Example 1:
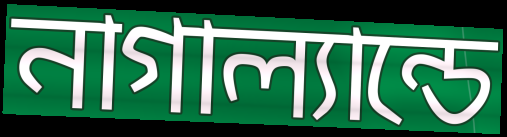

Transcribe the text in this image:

নাগাল্যান্ডে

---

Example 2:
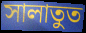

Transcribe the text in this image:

সালাতুত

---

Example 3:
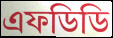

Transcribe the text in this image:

এফডিডি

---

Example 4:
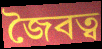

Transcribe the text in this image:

জৈবত্ব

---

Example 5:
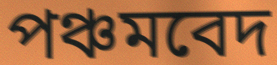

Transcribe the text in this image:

পঞ্চমবেদ